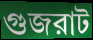
গুজরাট